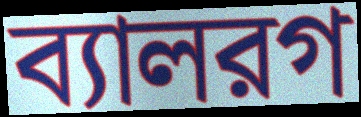
ব্যালরগ